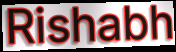
Rishabh